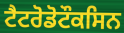
ਟੈਟਰੋਡੋਟੌਕਸਿਨ